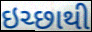
ઇચ્છાથી